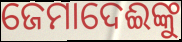
ଜେମାଦେଈଙ୍କୁ